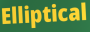
Elliptical